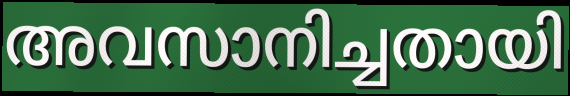
അവസാനിച്ചതായി